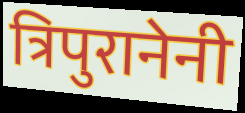
त्रिपुरानेनी